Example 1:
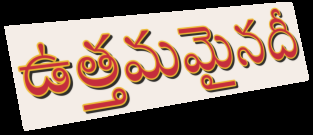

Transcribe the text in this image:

ఉత్తమమైనదీ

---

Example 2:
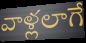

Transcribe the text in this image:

వాళ్లలాగే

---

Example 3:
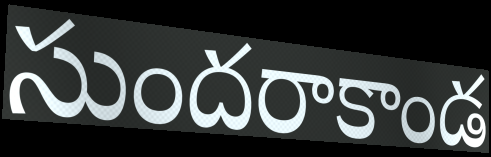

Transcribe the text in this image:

సుందరాకాండ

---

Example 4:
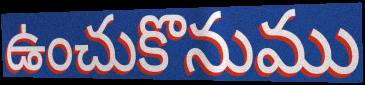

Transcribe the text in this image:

ఉంచుకొనుము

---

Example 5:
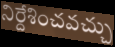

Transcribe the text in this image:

నిర్దేశించవచ్చు